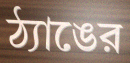
ঠ্যাঙের